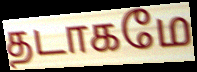
தடாகமே